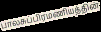
பாலசுப்பிரமணியத்தின்